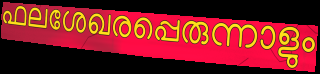
ഫലശേഖരപ്പെരുന്നാളും